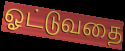
ஓட்டுவதை